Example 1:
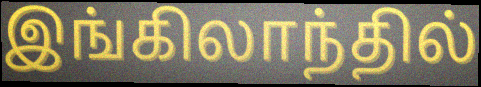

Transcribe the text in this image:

இங்கிலாந்தில்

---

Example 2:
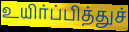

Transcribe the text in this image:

உயிர்ப்பித்துச்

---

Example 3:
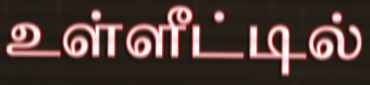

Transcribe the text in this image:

உள்ளீட்டில்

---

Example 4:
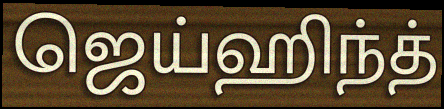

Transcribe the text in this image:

ஜெய்ஹிந்த்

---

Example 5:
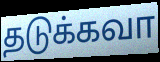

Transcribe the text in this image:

தடுக்கவா